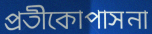
প্রতীকোপাসনা